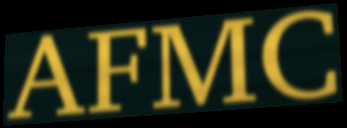
AFMC